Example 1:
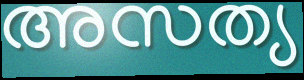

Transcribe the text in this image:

അസത്യ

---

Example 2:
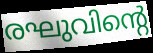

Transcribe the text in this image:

രഘുവിന്റെ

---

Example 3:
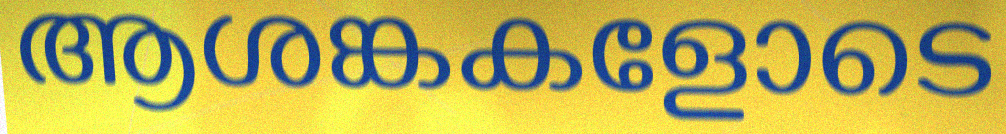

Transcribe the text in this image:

ആശങ്കകളോടെ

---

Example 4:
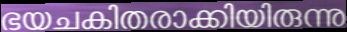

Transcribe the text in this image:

ഭയചകിതരാക്കിയിരുന്നു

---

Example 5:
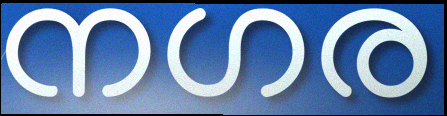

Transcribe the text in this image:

നഗര